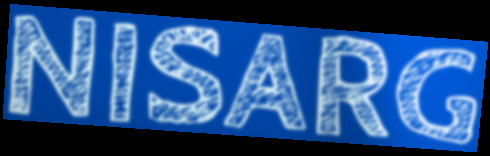
NISARG